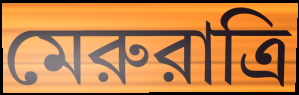
মেরুরাত্রি